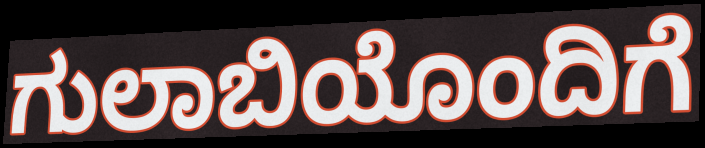
ಗುಲಾಬಿಯೊಂದಿಗೆ